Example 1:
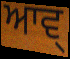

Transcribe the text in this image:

ਆਵ੍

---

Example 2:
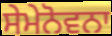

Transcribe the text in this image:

ਸੇਮੇਨੋਵਨਾ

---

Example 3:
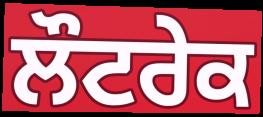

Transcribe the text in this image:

ਲੌਟਰੇਕ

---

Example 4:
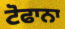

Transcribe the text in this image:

ਟੋਫਾਨਾ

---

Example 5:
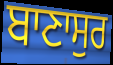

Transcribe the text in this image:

ਬਾਣਾਸੁਰ